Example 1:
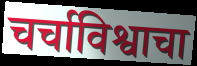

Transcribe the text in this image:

चर्चाविश्वाचा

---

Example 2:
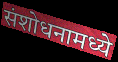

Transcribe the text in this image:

संशोधनामध्ये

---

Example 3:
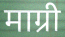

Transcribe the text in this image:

माग्री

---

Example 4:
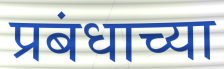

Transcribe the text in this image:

प्रबंधाच्या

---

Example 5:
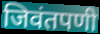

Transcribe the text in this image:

जिवंतपणी